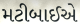
મટીબાઈએ